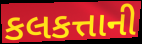
કલકત્તાની